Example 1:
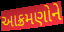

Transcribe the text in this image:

આક્રમણોને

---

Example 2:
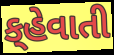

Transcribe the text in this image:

ક્‌હેવાતી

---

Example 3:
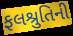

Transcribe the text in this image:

ફલશ્રુતિની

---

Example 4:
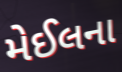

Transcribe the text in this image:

મેઈલના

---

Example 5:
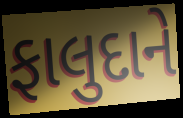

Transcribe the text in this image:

ફાલુદાને